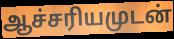
ஆச்சரியமுடன்